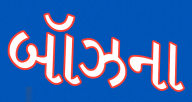
બૉઝના